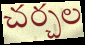
చర్చల